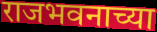
राजभवनाच्या